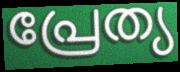
പ്രേത്യ